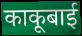
काकूबाई